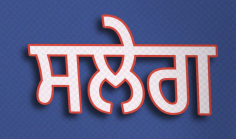
ਸਲੇਗ